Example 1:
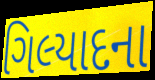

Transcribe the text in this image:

ગિલ્યાદના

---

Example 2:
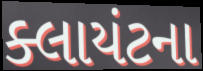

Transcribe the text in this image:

ક્લાયંટના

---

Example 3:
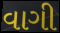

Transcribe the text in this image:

વાગી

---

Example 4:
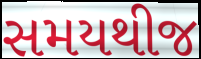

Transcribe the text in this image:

સમયથીજ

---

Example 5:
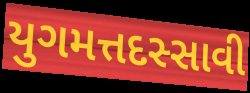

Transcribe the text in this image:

યુગમત્તદસ્સાવી